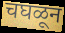
चघळून